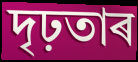
দৃঢ়তাৰ